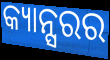
କ୍ୟାନ୍ସରର